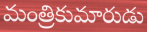
మంత్రికుమారుడు